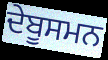
ਦੇਬੂਸਮਨ